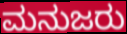
ಮನುಜರು